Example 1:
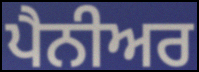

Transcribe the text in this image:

ਪੈਨੀਅਰ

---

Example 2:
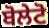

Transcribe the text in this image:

ਬੋਲੇਟੋ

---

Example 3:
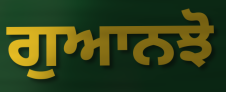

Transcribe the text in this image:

ਗੁਆਨਝੋ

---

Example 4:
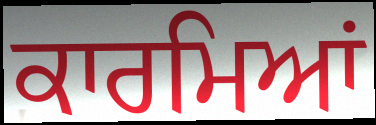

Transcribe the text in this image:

ਕਾਰਮਿਆਂ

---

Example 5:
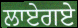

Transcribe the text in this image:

ਲਾਏਗਏ